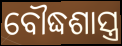
ବୌଦ୍ଧଶାସ୍ତ୍ର